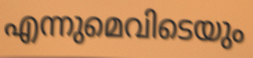
എന്നുമെവിടെയും